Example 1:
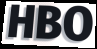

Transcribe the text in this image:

HBO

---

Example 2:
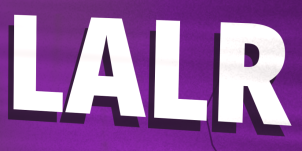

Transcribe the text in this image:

LALR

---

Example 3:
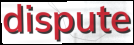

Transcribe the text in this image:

dispute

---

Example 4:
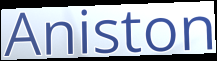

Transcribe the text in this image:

Aniston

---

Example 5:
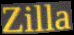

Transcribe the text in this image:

Zilla